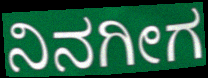
ನಿನಗೀಗ